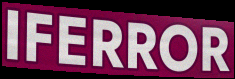
IFERROR